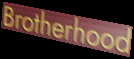
Brotherhood